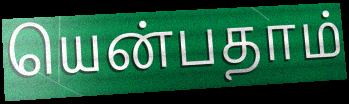
யென்பதாம்